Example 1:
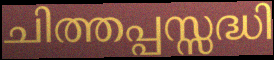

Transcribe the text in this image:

ചിത്തപ്പസ്സദ്ധി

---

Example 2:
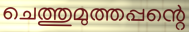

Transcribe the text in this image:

ചെത്തുമുത്തപ്പന്റെ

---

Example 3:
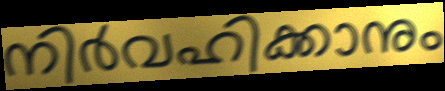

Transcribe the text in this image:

നിർവഹിക്കാനും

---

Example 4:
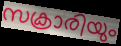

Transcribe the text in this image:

സക്രാരിയും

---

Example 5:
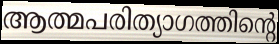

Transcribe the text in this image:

ആത്മപരിത്യാഗത്തിന്റെ